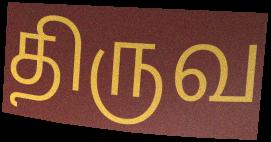
திருவ